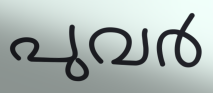
പുവർ